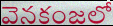
వెనకంజలో